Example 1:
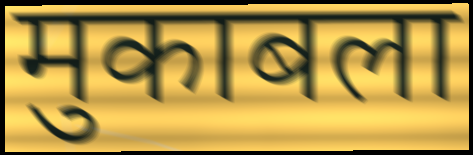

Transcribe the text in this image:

मुकाबला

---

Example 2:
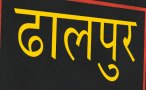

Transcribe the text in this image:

ढालपुर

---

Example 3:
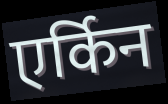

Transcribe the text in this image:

एर्किन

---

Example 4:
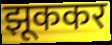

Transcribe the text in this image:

झूककर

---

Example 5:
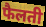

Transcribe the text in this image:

फैलती